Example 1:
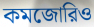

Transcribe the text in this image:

কমজোরিও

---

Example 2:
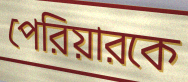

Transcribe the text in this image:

পেরিয়ারকে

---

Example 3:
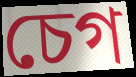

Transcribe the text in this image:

চেগ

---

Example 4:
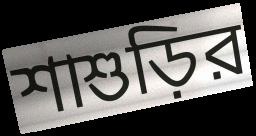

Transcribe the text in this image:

শাশুড়ির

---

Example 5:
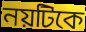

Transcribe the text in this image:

নয়টিকে